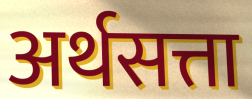
अर्थसत्ता